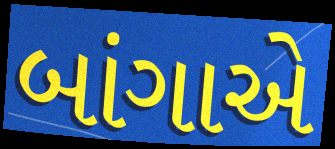
બાંગાએ